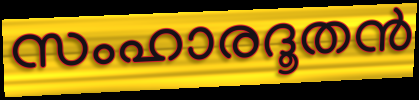
സംഹാരദൂതൻ